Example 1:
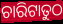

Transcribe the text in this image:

ଚାରିଟାତୁଠ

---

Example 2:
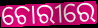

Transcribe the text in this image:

ଚୋରୀରେ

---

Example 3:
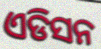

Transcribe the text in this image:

ଏଡିସନ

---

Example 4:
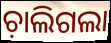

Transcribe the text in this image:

ଚ଼ାଲିଗଲା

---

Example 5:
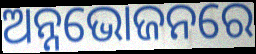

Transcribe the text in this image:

ଅନ୍ନଭୋଜନରେ